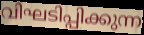
വിഘടിപ്പിക്കുന്ന